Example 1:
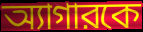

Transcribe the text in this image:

অ্যাগারকে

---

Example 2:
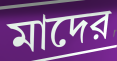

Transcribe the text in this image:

মাদের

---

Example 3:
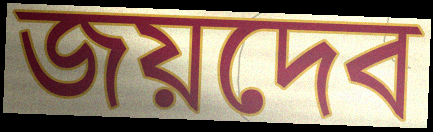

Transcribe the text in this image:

জয়দেব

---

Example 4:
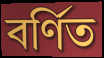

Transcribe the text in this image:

বর্ণিত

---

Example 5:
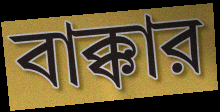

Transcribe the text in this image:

বাক্কার